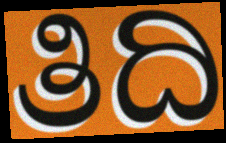
ತಿದಿ